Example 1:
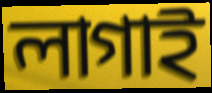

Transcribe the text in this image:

লাগাই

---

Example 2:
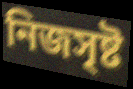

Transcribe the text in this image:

নিজসৃষ্ট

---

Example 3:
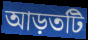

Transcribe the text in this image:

আড়তটি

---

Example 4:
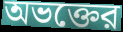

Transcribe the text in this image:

অভক্তের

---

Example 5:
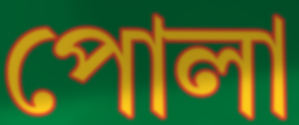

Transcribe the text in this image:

পোলা